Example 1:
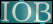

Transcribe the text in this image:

IOB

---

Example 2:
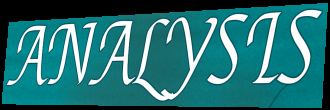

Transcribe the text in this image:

ANALYSIS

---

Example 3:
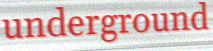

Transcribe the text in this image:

underground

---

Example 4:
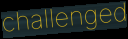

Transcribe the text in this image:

challenged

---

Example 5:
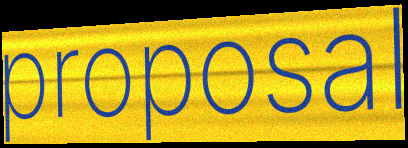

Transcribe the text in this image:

proposal